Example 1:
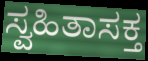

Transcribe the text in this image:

ಸ್ವಹಿತಾಸಕ್ತ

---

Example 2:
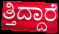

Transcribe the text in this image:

ತ್ತಿದ್ದಾರೆ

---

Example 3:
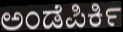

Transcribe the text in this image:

ಅಂಡೆಪಿರ್ಕಿ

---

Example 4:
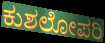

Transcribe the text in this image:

ಕುಶಲೋಪರಿ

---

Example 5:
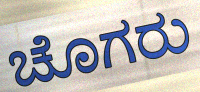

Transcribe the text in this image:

ಚೊಗರು